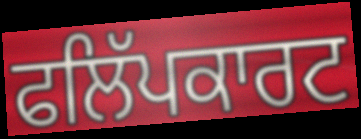
ਫਲਿੱਪਕਾਰਟ